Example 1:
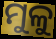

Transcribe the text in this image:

ମୁଳୁ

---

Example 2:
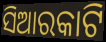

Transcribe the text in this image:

ସିଆରକାଟି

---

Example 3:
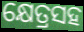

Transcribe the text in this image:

କ୍ଷେତ୍ରସହ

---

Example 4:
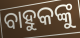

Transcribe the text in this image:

ବାହୁକଙ୍କୁ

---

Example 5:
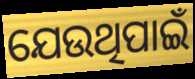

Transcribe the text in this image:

ଯେଉଥିପାଇଁ